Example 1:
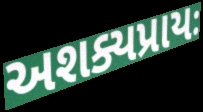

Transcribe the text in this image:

અશક્યપ્રાયઃ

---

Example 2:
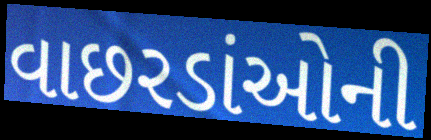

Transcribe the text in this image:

વાછરડાંઓની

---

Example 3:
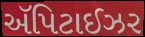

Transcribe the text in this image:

ઍપિટાઈઝર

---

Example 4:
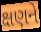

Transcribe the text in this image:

ક્ષણને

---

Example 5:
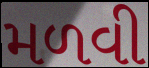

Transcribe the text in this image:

મળવી